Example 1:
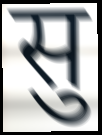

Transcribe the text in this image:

सु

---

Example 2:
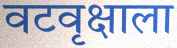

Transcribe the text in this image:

वटवृक्षाला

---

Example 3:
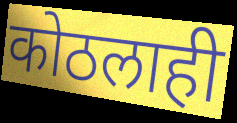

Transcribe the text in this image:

कोठलाही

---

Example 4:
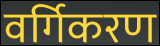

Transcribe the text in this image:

वर्गिकरण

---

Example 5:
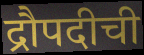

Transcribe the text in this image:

द्रौपदीची